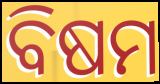
ବିଷମ